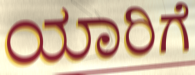
ಯಾರಿಗೆ